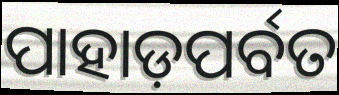
ପାହାଡ଼ପର୍ବତ